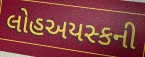
લોહઅયસ્કની